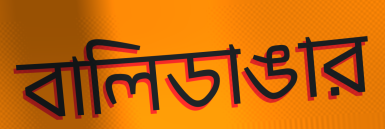
বালিডাঙার